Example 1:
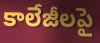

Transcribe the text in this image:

కాలేజీలపై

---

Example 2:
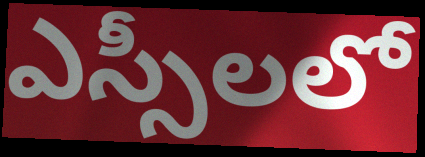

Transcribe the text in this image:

ఎస్సీలలో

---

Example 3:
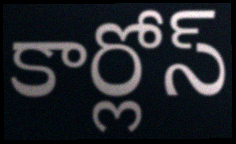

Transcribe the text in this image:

కార్లోస్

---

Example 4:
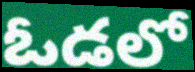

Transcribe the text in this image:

ఓడలో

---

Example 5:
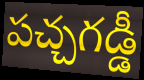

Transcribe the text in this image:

పచ్చగడ్డీ